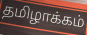
தமிழாக்கம்